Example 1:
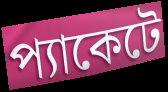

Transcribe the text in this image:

প্যাকেটে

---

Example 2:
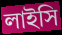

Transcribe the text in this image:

লাইসি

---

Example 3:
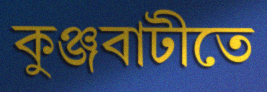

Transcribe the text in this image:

কুঞ্জবাটীতে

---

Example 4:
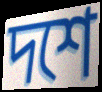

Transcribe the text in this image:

দশে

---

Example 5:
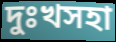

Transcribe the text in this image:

দুঃখসহা